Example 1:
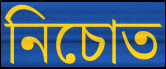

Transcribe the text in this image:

নিচোত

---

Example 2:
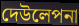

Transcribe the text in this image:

দেউলেপনা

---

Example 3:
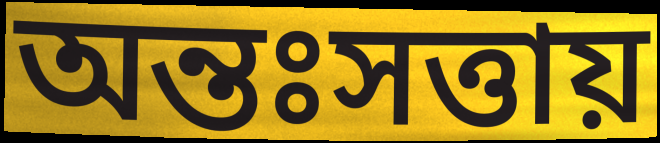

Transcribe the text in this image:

অন্তঃসত্তায়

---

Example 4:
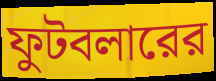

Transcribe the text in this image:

ফুটবলারের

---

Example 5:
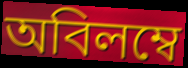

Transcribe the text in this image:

অবিলম্বে